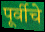
पूर्वीचे